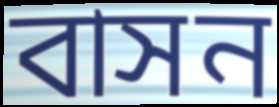
বাসন